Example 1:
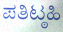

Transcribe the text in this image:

ಪತಿಟ್ಠಹಿ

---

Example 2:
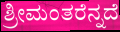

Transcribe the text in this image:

ಶ್ರೀಮಂತರೆನ್ನದೆ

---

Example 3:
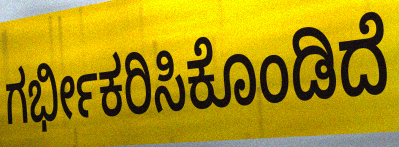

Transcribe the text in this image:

ಗರ್ಭೀಕರಿಸಿಕೊಂಡಿದೆ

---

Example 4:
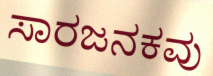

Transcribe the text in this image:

ಸಾರಜನಕವು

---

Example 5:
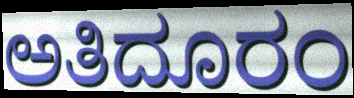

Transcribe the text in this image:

ಅತಿದೂರಂ